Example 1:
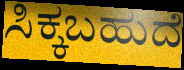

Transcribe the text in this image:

ಸಿಕ್ಕಬಹುದೆ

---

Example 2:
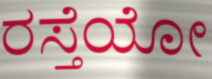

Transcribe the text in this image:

ರಸ್ತೆಯೋ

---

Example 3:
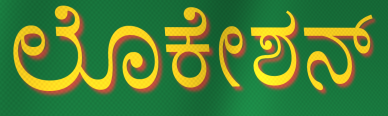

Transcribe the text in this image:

ಲೊಕೇಶನ್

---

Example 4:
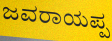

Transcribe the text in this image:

ಜವರಾಯಪ್ಪ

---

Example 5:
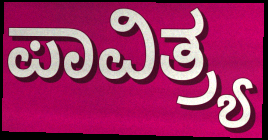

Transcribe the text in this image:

ಪಾವಿತ್ರ್ಯ